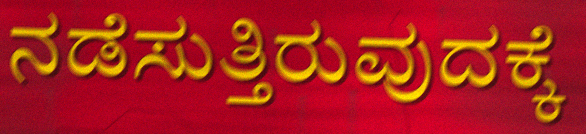
ನಡೆಸುತ್ತಿರುವುದಕ್ಕೆ